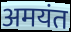
अमयंत